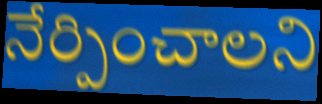
నేర్పించాలని